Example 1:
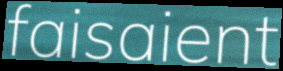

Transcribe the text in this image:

faisaient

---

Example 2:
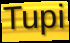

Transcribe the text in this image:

Tupi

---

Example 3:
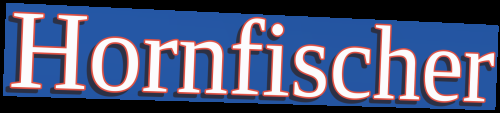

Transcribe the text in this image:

Hornfischer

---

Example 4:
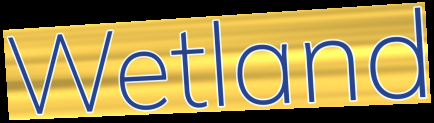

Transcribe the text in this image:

Wetland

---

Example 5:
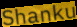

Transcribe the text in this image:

Shanku